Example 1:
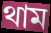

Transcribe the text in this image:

থাম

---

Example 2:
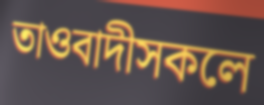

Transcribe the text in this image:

তাওবাদীসকলে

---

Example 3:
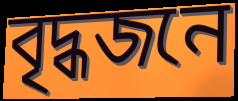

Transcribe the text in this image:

বৃদ্ধজনে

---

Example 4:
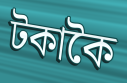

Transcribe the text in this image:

টকাকৈ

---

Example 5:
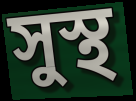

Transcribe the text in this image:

সুস্থ